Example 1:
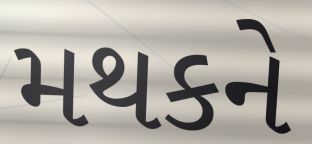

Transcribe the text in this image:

મથકને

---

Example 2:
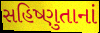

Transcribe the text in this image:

સહિષ્ણુતાનાં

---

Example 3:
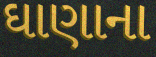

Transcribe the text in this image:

ઘાણાના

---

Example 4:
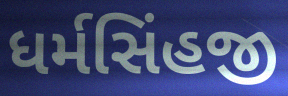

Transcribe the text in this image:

ધર્મસિંહજી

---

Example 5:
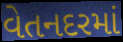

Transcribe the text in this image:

વેતનદરમાં